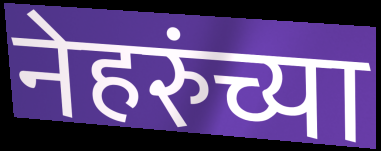
नेहरुंच्या